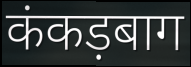
कंकड़बाग